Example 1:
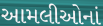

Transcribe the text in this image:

આમલીઓનાં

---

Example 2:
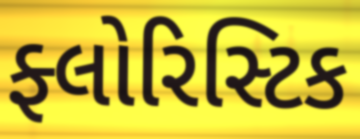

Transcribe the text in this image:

ફ્લોરિસ્ટિક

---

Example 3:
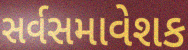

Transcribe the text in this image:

સર્વસમાવેશક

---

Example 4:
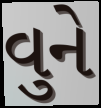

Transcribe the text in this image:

વુને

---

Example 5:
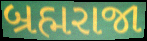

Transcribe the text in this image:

બ્રહ્મરાજા